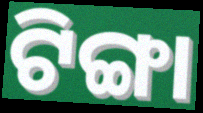
ଟିଙ୍ଗା